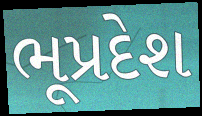
ભૂપ્રદેશ